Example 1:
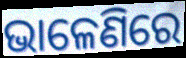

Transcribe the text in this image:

ଭାଳେଣିରେ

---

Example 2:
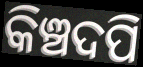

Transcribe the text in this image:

କିଞ୍ଚଦପି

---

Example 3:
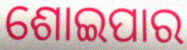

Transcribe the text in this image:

ଶୋଇପାର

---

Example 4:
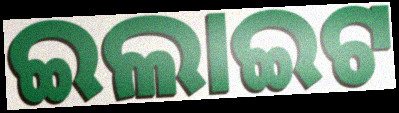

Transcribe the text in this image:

ଇଲାଇଟ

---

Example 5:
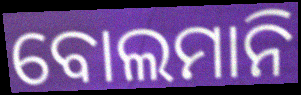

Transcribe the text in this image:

ବୋଲମାନି